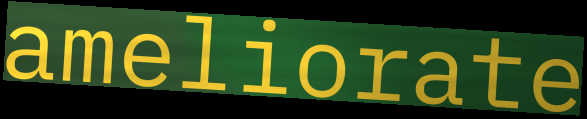
ameliorate